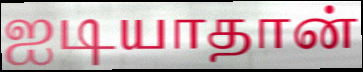
ஐடியாதான்